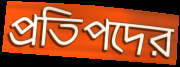
প্রতিপদের